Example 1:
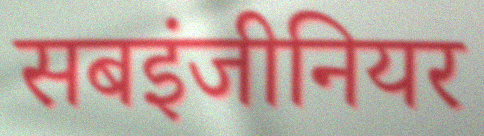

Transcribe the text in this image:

सबइंजीनियर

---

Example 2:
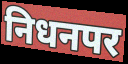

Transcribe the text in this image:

निधनपर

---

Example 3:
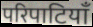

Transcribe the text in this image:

परिपाटियाँ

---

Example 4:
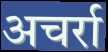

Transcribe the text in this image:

अचर्रा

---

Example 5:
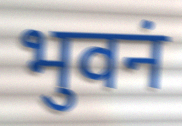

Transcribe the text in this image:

भुवनं